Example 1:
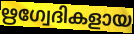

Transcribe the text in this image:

ഋഗ്വേദികളായ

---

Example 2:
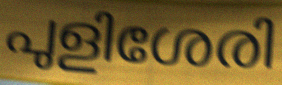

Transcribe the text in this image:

പുളിശേരി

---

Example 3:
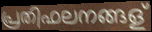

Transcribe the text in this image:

പ്രതിഫലനങ്ങള്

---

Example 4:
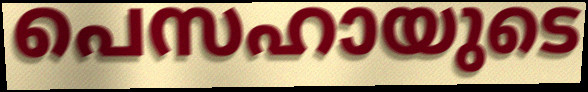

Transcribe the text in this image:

പെസഹായുടെ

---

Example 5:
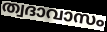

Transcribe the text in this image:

ത്വദാവാസം